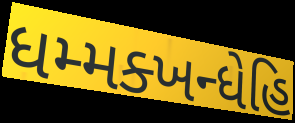
ધમ્મક્ખન્ધેહિ